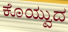
ಕೊಯ್ವುದ